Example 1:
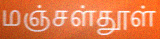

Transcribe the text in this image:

மஞ்சள்தூள்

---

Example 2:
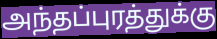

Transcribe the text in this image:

அந்தப்புரத்துக்கு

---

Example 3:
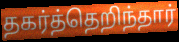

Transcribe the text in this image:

தகர்த்தெறிந்தார்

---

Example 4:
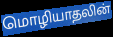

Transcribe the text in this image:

மொழியாதலின்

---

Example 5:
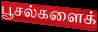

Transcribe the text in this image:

பூசல்களைக்